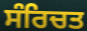
ਸੰਰਿਚਤ